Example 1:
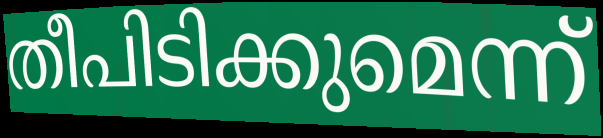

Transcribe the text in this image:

തീപിടിക്കുമെന്ന്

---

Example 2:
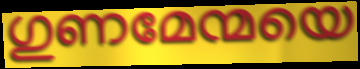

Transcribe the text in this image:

ഗുണമേന്മയെ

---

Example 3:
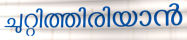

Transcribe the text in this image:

ചുറ്റിത്തിരിയാൻ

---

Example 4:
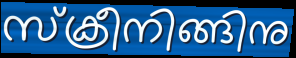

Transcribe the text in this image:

സ്ക്രീനിങ്ങിനു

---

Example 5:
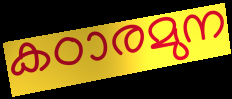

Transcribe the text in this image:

കഠാരമുന